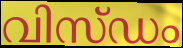
വിസ്ഡം